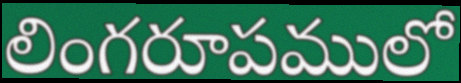
లింగరూపములో